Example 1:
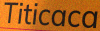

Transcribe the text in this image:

Titicaca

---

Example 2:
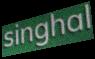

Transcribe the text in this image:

singhal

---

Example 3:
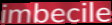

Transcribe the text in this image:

imbecile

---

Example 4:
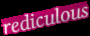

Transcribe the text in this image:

rediculous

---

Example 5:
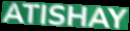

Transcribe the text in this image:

ATISHAY